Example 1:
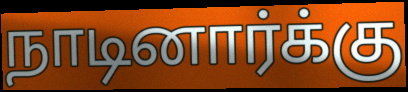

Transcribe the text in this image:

நாடினார்க்கு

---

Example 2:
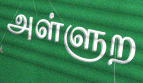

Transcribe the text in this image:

அள்ளுற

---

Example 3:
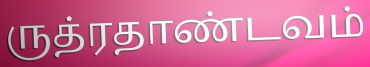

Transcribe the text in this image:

ருத்ரதாண்டவம்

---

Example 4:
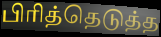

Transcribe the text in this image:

பிரித்தெடுத்த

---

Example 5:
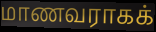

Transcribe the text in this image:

மாணவராகக்